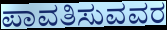
ಪಾವತಿಸುವವರ